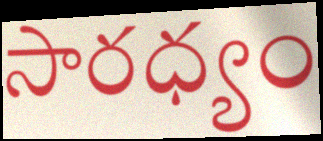
సారధ్యం